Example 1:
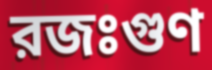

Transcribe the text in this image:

রজঃগুণ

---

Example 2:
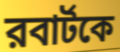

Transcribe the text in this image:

রবার্টকে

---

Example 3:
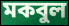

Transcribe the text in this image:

মকবুল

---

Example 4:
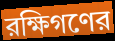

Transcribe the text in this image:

রক্ষিগণের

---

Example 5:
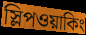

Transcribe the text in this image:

স্লিপওয়াকিং